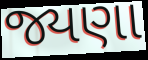
જ્યણા